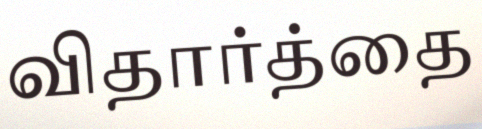
விதார்த்தை